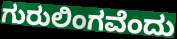
ಗುರುಲಿಂಗವೆಂದು